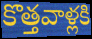
కొత్తవాళ్లకి